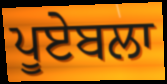
ਪੂਏਬਲਾ